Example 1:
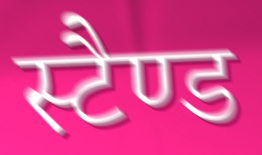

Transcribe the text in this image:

स्टैण्ड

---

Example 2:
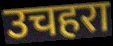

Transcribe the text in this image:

उचहरा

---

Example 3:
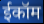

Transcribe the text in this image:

ईकॉम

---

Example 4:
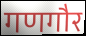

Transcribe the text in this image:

गणगौर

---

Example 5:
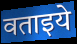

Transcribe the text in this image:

वताइये